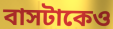
বাসটাকেও